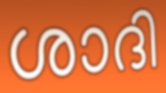
ശാദി